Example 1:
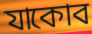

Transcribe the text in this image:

যাকোব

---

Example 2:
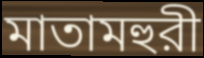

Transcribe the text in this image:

মাতামহুরী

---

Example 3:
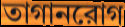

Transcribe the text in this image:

তাগানরোগ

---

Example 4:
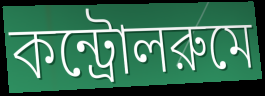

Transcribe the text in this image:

কন্ট্রোলরুমে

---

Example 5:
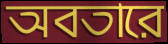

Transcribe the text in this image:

অবতারে